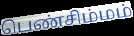
பெண்சிம்மம்